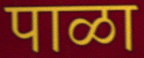
पाळा